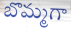
బొమ్మగా